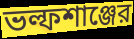
ভল্ফশাঞ্জের